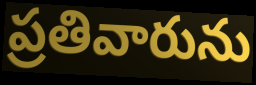
ప్రతివారును